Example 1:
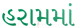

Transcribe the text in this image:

હરામમાં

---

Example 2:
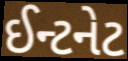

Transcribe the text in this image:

ઈન્ટનેટ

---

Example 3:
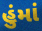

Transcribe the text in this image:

હુંમાં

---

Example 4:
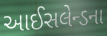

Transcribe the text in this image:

આઈસલેન્ડના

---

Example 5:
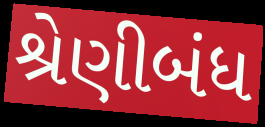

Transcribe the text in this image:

શ્રેણીબંધ